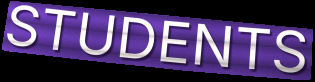
STUDENTS